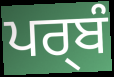
ਪਰ੍ਬੰ